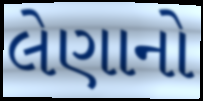
લેણાનો